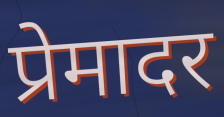
प्रेमादर